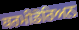
ਥਰਮੀਡੋਰਿਅਨ